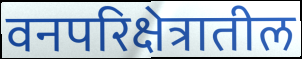
वनपरिक्षेत्रातील